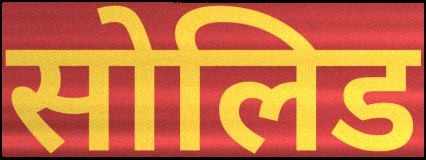
सोलिड